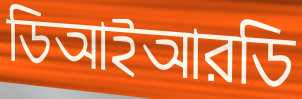
ডিআইআরডি